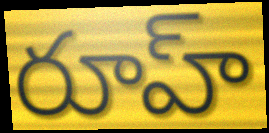
రూహ్